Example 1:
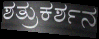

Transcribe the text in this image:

ಶತ್ರುಕರ್ಶನ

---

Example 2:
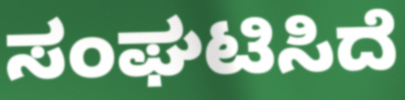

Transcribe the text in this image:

ಸಂಘಟಿಸಿದೆ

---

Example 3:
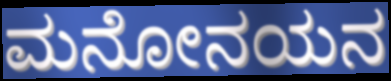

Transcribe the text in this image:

ಮನೋನಯನ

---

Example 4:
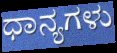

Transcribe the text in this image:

ಧಾನ್ಯಗಳು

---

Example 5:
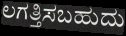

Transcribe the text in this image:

ಲಗತ್ತಿಸಬಹುದು